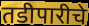
तडीपारीचे